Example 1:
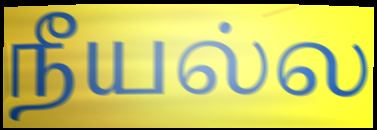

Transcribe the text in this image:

நீயல்ல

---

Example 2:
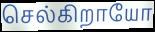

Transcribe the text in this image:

செல்கிறாயோ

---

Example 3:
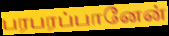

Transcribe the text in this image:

பரபரப்பானேன்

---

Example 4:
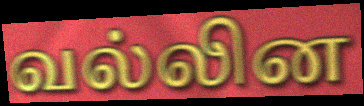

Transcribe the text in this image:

வல்லின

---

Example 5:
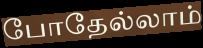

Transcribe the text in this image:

போதேல்லாம்